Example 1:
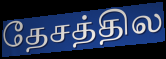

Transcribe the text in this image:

தேசத்தில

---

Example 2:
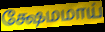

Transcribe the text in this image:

க்ஷேமமாய்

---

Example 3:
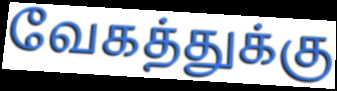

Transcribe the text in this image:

வேகத்துக்கு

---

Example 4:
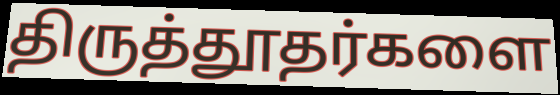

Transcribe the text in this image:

திருத்தூதர்களை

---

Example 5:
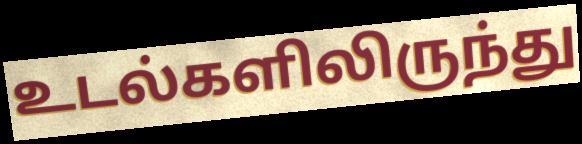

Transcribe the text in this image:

உடல்களிலிருந்து